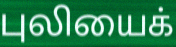
புலியைக்